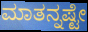
ಮಾತನ್ನಷ್ಟೇ